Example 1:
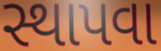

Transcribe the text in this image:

સ્થાપવા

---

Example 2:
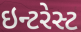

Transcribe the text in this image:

ઇન્ટરેસ્ટ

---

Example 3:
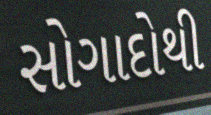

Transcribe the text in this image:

સોગાદોથી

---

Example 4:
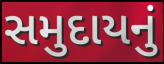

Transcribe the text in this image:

સમુદાયનું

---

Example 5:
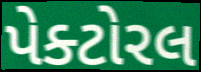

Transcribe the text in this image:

પેક્ટોરલ